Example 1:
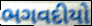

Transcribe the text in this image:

ભગવદીયો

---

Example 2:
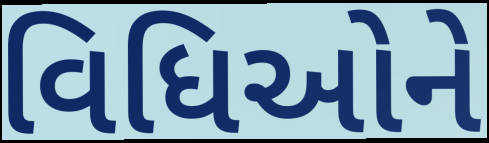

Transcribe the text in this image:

વિધિઓને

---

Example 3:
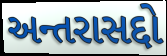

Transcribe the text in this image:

અન્તરાસદ્દો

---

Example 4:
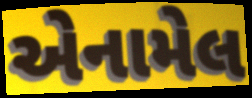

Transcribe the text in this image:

એનામેલ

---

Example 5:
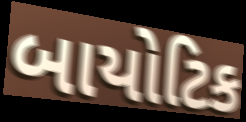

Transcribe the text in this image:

બાયોટિક